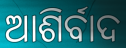
ଆଶିର୍ବାଦ